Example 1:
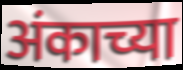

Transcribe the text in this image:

अंकाच्या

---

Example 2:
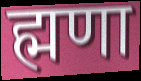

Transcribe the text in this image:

ह्मणा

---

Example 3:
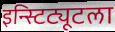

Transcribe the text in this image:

इन्स्टिट्यूटला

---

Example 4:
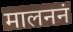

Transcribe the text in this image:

मालननं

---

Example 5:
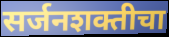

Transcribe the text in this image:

सर्जनशक्तीचा